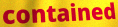
contained